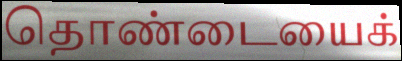
தொண்டையைக்